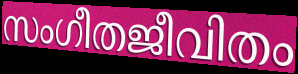
സംഗീതജീവിതം